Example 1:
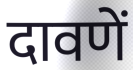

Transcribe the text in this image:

दावणें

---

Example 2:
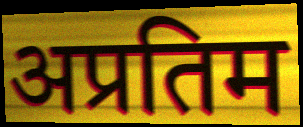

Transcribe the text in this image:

अप्रतिम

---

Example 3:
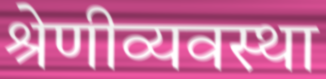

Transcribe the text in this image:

श्रेणीव्यवस्था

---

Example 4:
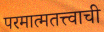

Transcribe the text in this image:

परमात्मतत्त्वाची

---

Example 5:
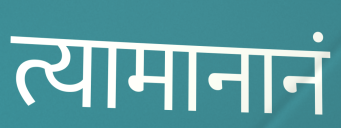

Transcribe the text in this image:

त्यामानानं